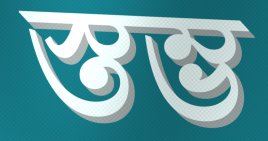
স্তম্ভ